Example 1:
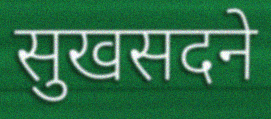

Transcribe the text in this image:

सुखसदने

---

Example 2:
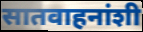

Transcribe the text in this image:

सातवाहनांशी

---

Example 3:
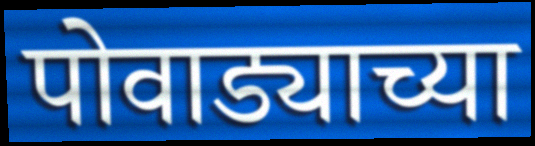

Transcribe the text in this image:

पोवाड्याच्या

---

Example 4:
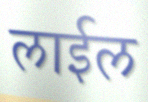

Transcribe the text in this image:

लाईल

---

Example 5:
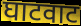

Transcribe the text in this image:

घाटवाट